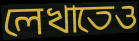
লেখাতেও